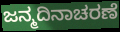
ಜನ್ಮದಿನಾಚರಣೆ